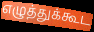
எழுத்துக்கூட